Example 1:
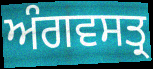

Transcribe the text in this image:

ਅੰਗਵਸਤ੍ਰ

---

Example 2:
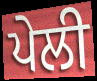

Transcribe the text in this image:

ਪੇਲੀ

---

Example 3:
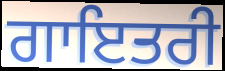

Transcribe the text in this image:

ਗਾਇਤਰੀ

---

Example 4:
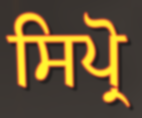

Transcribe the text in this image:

ਸਿਪ੍ਰੋ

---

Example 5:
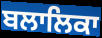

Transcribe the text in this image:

ਬਲਾਲਿਕਾ